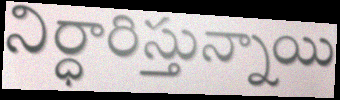
నిర్ధారిస్తున్నాయి